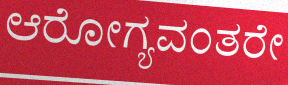
ಆರೋಗ್ಯವಂತರೇ